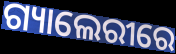
ଗ୍ୟାଲେରୀରେ